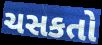
ચસકતો